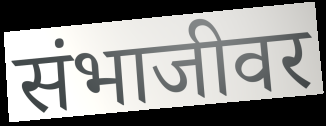
संभाजीवर